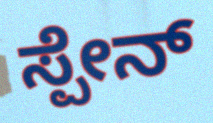
ಸ್ಪೇನ್